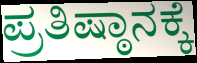
ಪ್ರತಿಷ್ಠಾನಕ್ಕೆ